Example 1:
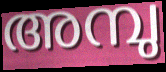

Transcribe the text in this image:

അമ്പു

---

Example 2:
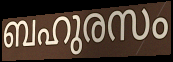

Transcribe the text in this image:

ബഹുരസം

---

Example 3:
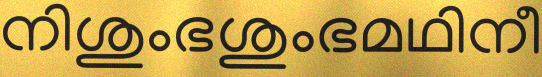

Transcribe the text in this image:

നിശുംഭശുംഭമഥിനീ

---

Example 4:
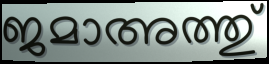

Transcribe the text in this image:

ജമാഅത്തു്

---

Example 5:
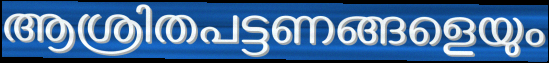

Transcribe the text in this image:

ആശ്രിതപട്ടണങ്ങളെയും